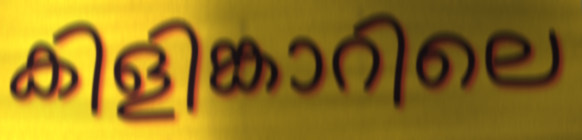
കിളിങ്കാറിലെ